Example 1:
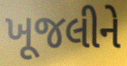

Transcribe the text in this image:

ખૂજલીને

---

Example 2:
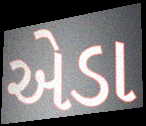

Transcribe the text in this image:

એડા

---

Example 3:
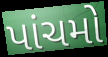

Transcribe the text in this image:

પાંચમો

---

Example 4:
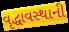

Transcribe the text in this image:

વૃદ્ધાવસ્થાની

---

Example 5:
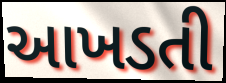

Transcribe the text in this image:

આખડતી